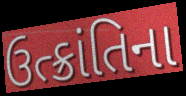
ઉત્ક્રાંતિના